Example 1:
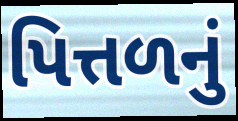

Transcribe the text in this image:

પિત્તળનું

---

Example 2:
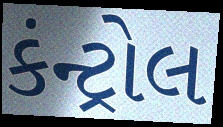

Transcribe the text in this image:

કંન્ટ્રોલ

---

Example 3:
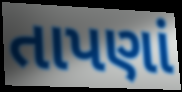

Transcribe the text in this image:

તાપણાં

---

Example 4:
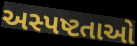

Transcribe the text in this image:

અસ્પષ્ટતાઓ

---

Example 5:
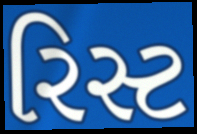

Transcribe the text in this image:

રિસ્ટ